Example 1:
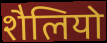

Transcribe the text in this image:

शैलियो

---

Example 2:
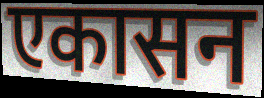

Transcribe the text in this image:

एकासन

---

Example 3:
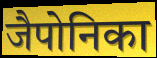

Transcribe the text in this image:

जैपोनिका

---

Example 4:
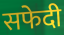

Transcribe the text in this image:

सफेदी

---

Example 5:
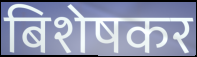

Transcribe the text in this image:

बिशेषकर